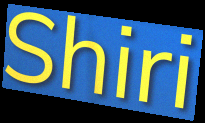
Shiri